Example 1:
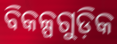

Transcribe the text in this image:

ବିକଳ୍ପଗୁଡ଼ିକ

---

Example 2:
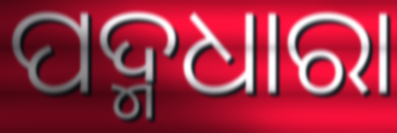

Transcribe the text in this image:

ପଦ୍ମଧାରା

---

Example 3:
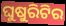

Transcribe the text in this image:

ଘୁଷୁରିଟିର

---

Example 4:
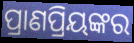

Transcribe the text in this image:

ପ୍ରାଣପ୍ରିୟଙ୍କର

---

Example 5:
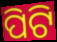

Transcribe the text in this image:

ପିଟି